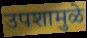
उपशामुळे